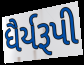
ધૈર્યરૂપી